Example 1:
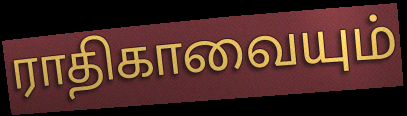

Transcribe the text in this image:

ராதிகாவையும்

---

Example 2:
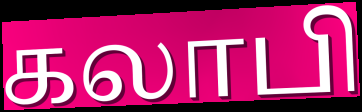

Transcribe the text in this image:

கலாபி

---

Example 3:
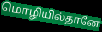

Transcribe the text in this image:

மொழியில்தானே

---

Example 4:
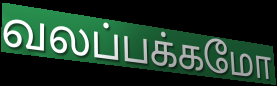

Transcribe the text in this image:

வலப்பக்கமோ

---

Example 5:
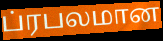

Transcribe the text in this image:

ப்ரபலமான